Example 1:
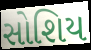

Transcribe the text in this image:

સોશિય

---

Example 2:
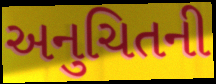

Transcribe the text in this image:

અનુચિતની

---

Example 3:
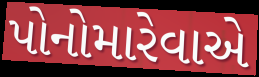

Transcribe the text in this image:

પોનોમારેવાએ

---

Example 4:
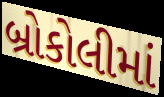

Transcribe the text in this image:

બ્રોકોલીમાં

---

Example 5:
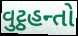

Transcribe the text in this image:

વુટ્ઠહન્તો